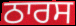
ਠਾਰਸ